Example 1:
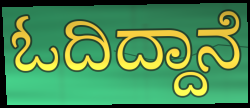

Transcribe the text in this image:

ಓದಿದ್ದಾನೆ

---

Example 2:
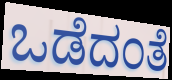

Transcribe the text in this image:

ಒಡೆದಂತೆ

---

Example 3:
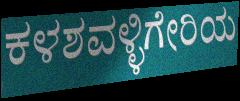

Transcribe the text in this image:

ಕಳಶವಳ್ಳಿಗೇರಿಯ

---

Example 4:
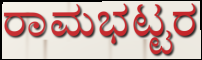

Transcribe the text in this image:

ರಾಮಭಟ್ಟರ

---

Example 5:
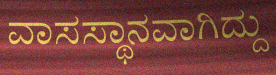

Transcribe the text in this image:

ವಾಸಸ್ಥಾನವಾಗಿದ್ದು